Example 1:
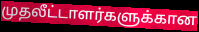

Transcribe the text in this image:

முதலீட்டாளர்களுக்கான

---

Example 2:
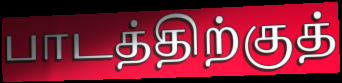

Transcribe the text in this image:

பாடத்திற்குத்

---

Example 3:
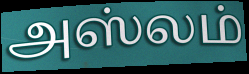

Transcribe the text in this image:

அஸ்லம்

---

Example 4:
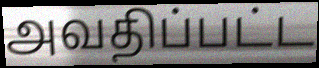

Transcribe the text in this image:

அவதிப்பட்ட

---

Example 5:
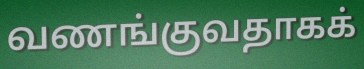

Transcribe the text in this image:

வணங்குவதாகக்